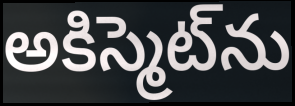
అకిస్మెట్‌ను